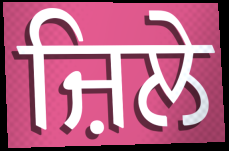
ਜ਼ਿਲੇ